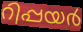
റിപ്പയർ